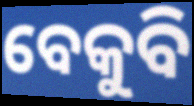
ବେକୁବି